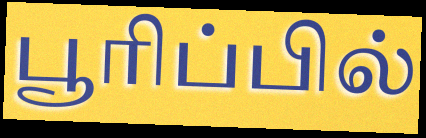
பூரிப்பில்